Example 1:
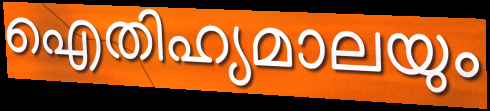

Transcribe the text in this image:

ഐതിഹ്യമാലയും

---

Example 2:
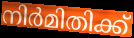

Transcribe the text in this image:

നിർമിതിക്ക്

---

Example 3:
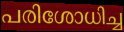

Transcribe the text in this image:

പരിശോധിച്ച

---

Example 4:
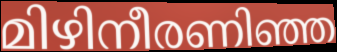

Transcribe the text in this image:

മിഴിനീരണിഞ്ഞ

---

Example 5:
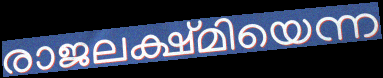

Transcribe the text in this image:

രാജലക്ഷ്മിയെന്ന